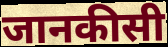
जानकीसी